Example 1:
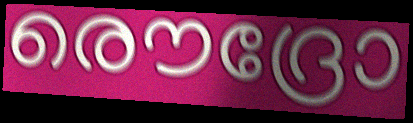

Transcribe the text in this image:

രൌദ്രോ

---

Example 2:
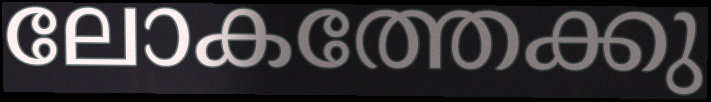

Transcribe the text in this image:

ലോകത്തേക്കു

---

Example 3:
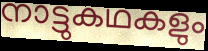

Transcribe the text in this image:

നാട്ടുകഥകളും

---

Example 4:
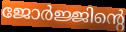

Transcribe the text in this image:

ജോർജ്ജിന്റെ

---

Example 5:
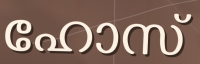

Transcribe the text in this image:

ഹോസ്